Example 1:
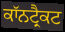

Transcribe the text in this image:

ਕਾੱਨਟ੍ਰੈਕਟ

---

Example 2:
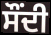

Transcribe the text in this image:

ਸੌਂਦੀ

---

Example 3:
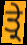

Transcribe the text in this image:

ਤ੍ਰੇ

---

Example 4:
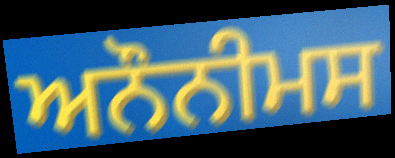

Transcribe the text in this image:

ਅਨੌਨੀਮਸ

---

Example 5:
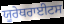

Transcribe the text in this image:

ਯੂਰੇਥਰਾਈਟਸ